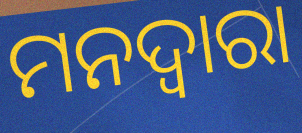
ମନଦ୍ଵାରା